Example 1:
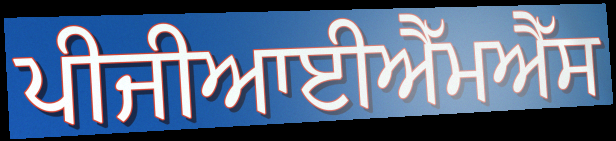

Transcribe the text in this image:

ਪੀਜੀਆਈਐੱਮਐੱਸ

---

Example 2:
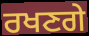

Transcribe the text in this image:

ਰਖਣਗੇ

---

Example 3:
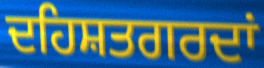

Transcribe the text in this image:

ਦਹਿਸ਼ਤਗਰਦਾਂ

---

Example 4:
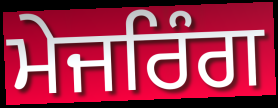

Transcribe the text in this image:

ਮੇਜਰਿੰਗ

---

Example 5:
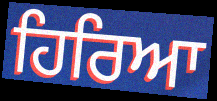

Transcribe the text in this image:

ਹਿਰਿਆ